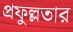
প্রফুল্লতার